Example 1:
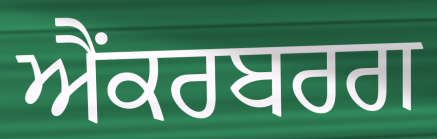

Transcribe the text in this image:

ਐਂਕਰਬਰਗ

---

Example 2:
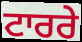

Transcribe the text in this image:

ਟਾਰਰੇ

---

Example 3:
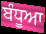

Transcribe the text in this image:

ਬੰਧੂਆ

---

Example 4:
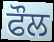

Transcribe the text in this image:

ਫੌਲ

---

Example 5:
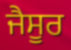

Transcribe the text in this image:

ਜੈਸੂਰ